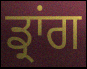
ਡ੍ਰਾਂਗ